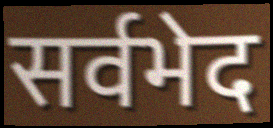
सर्वभेद